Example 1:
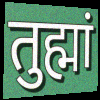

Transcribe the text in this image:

तुह्मां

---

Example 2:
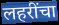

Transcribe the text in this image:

लहरींचा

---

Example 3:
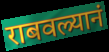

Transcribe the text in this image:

राबवल्यानं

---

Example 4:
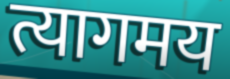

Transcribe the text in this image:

त्यागमय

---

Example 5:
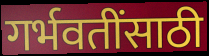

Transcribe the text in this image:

गर्भवतींसाठी